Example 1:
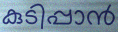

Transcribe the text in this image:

കുടിപ്പാൻ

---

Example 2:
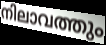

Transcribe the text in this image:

നിലാവത്തും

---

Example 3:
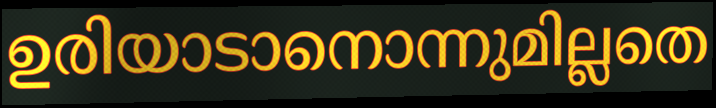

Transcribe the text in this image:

ഉരിയാടാനൊന്നുമില്ലതെ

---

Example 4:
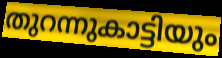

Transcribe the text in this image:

തുറന്നുകാട്ടിയും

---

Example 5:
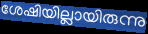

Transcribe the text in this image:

ശേഷിയില്ലായിരുന്നു